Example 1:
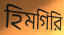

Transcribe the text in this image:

হিমগিরি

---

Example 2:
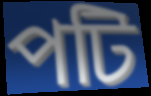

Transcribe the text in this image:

পটি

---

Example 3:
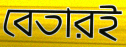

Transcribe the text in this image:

বেতারই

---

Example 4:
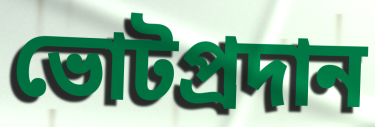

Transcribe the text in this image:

ভোটপ্রদান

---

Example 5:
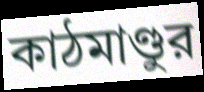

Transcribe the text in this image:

কাঠমাণ্ডুর